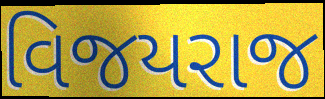
વિજયરાજ